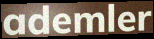
ademler